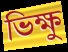
ভিক্ষু